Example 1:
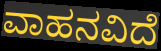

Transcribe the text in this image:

ವಾಹನವಿದೆ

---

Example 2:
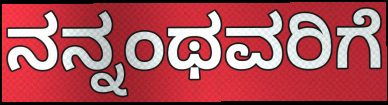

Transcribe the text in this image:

ನನ್ನಂಥವರಿಗೆ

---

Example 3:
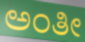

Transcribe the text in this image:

ಅಂತೀ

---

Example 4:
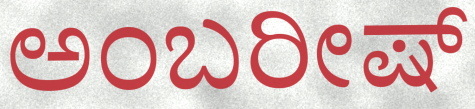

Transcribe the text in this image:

ಅಂಬರೀಷ್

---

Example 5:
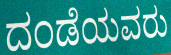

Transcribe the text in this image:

ದಂಡೆಯವರು